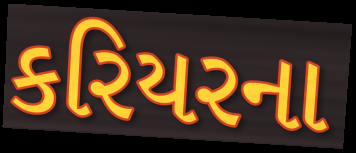
કરિયરના